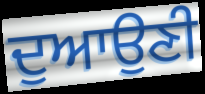
ਦੁਆਉਣੀ